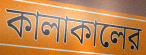
কালাকালের